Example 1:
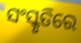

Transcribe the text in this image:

ସଂସ୍କୃତିରେ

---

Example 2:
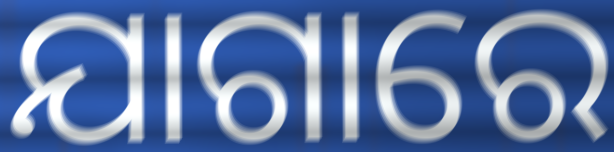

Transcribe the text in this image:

ଯାଗାରେ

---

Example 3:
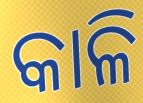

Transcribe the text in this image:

କାଳି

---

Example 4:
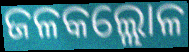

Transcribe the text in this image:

ଜଳକଲ୍ଲୋଳ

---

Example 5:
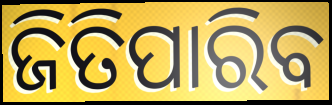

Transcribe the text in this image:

ଜିତିପାରିବ